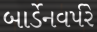
બાર્ડેનવર્પરે